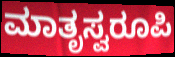
ಮಾತೃಸ್ವರೂಪಿ